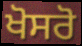
ਖੋਸਰੋ